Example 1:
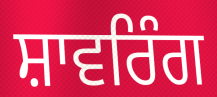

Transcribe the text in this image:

ਸ਼ਾਵਰਿੰਗ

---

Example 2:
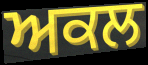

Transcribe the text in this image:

ਅਕਲ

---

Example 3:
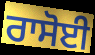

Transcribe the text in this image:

ਰਾਸੋਈ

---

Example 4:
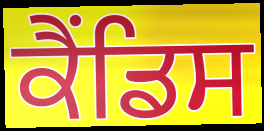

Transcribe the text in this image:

ਕੈਂਡਿਸ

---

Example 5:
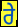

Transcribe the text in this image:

ਰੇ